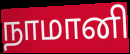
நாமானி